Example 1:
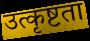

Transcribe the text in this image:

उत्कृष्टता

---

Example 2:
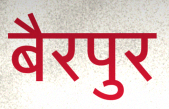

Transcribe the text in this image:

बैरपुर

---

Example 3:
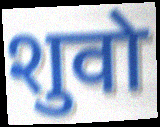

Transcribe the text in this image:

शुवो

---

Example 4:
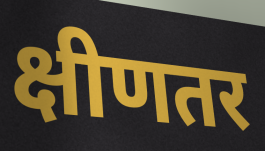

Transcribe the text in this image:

क्षीणतर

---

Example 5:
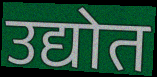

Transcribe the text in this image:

उद्योत